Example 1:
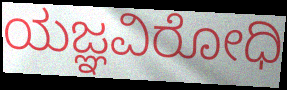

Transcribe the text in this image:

ಯಜ್ಞವಿರೋಧಿ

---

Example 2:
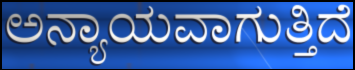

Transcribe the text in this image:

ಅನ್ಯಾಯವಾಗುತ್ತಿದೆ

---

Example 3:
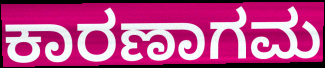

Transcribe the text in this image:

ಕಾರಣಾಗಮ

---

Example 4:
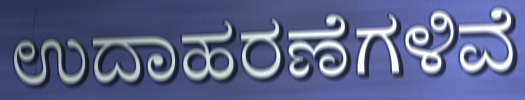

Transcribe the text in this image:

ಉದಾಹರಣೆಗಳಿವೆ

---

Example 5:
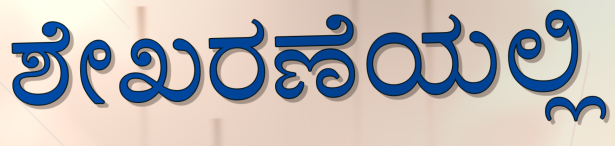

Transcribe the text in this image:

ಶೇಖರಣೆಯಲ್ಲಿ